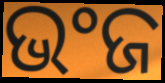
ଭଂଜ